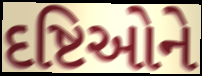
દષ્ટિઓને